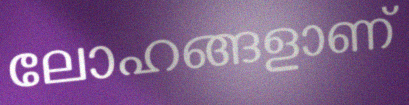
ലോഹങ്ങളാണ്